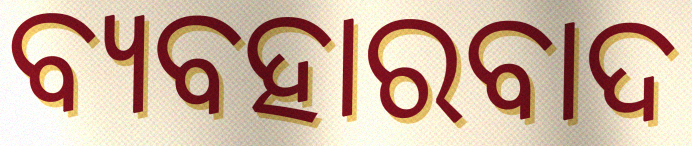
ବ୍ୟବହାରବାଦ